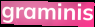
graminis